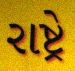
રાષ્ટ્રે